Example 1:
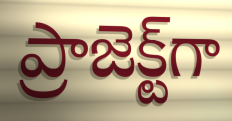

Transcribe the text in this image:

ప్రాజెక్ట్‌గా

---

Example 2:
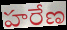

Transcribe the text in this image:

హరేణ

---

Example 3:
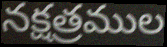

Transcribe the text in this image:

నక్షత్రముల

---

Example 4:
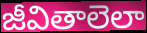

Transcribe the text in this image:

జీవితాలెలా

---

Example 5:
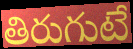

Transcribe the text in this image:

తిరుగుటే